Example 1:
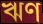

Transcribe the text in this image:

ঋণ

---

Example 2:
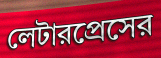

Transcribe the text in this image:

লেটারপ্রেসের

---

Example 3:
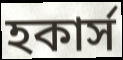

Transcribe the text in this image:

হকার্স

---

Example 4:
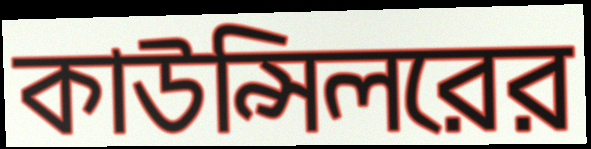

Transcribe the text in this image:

কাউন্সিলরের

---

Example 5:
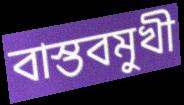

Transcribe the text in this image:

বাস্তবমুখী